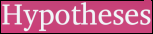
Hypotheses